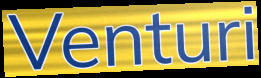
Venturi